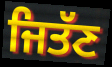
ਜਿਤੱਣ